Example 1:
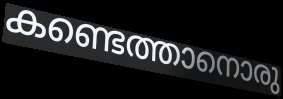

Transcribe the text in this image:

കണ്ടെത്താനൊരു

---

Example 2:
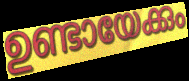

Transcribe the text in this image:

ഉണ്ടായേക്കും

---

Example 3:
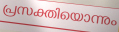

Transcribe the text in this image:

പ്രസക്തിയൊന്നും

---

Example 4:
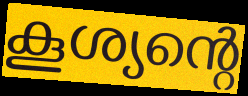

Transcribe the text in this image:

കൂശ്യന്റെ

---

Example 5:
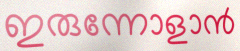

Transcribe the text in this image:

ഇരുന്നോളാൻ